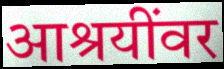
आश्रयींवर